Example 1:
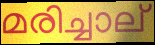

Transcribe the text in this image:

മരിച്ചാല്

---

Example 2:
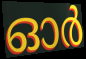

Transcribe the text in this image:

ഓർ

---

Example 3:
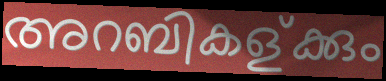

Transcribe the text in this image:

അറബികള്ക്കും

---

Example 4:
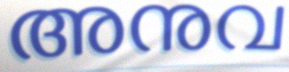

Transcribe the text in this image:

അനുവ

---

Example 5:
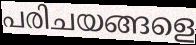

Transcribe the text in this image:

പരിചയങ്ങളെ